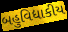
બહુવિદ્યાકીય